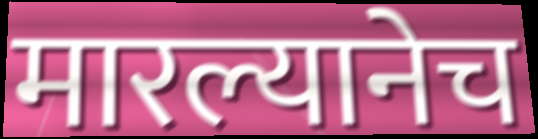
मारल्यानेच